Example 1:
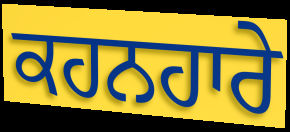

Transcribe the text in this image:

ਕਹਨਹਾਰੇ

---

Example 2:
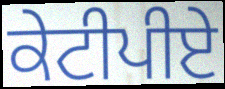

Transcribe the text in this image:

ਕੇਟੀਪੀਏ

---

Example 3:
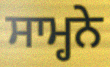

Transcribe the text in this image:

ਸਾਮ੍ਹਨੇ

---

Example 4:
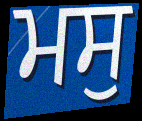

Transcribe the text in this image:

ਮਸੁ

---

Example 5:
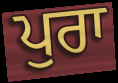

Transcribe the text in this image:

ਪੁਰਾ